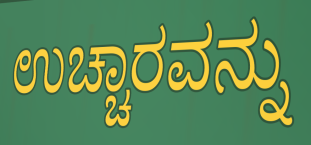
ಉಚ್ಚಾರವನ್ನು